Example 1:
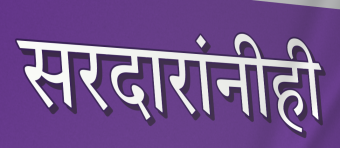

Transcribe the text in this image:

सरदारांनीही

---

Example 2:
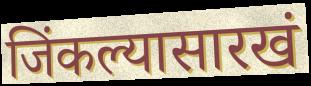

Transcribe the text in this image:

जिंकल्यासारखं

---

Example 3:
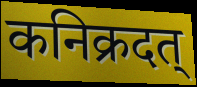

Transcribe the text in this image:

कनिक्रदत्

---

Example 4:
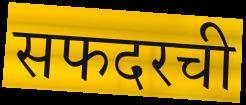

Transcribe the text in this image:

सफदरची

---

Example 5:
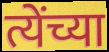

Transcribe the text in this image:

त्येंच्या